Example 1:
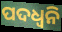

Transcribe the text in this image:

ପଦଧ୍ଵନି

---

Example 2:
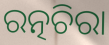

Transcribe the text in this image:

ରତ୍ନଚିରା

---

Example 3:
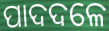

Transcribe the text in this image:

ପାଦଦଳେ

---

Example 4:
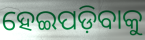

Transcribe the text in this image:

ହେଇପଡ଼ିବାକୁ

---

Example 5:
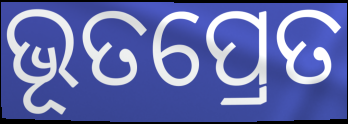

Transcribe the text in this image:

ଭୂତପ୍ରେତ